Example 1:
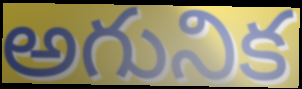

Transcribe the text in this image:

అగునిక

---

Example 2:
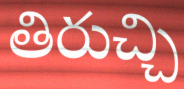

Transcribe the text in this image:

తిరుచ్చి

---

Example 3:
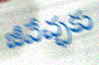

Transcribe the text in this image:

జీవేచ్ఛకు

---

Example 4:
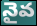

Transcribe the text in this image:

నైవ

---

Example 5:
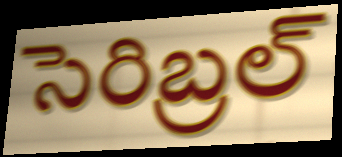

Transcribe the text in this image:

సెరిబ్రల్